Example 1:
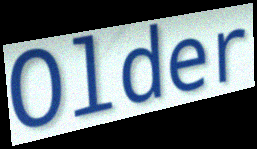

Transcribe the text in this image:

Older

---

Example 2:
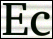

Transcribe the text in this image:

Ec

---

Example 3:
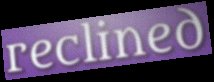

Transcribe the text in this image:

reclined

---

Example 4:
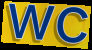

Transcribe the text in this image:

wc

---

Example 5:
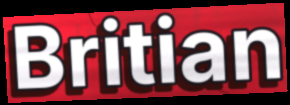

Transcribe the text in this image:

Britian